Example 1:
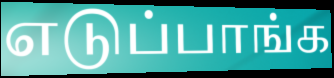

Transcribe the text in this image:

எடுப்பாங்க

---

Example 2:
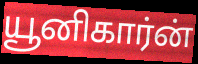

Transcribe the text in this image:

யூனிகார்ன்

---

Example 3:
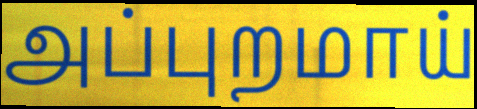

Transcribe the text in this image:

அப்புறமாய்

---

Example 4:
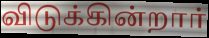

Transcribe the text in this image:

விடுக்கின்றார்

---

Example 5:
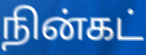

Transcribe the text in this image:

நின்கட்